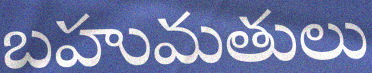
బహుమతులు